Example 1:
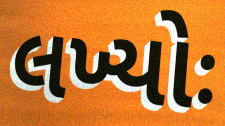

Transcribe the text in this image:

લખ્યોઃ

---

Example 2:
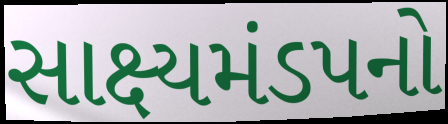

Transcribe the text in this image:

સાક્ષ્યમંડપનો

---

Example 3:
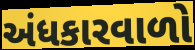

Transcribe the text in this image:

અંધકારવાળો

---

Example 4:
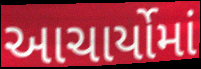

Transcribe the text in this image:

આચાર્યોમાં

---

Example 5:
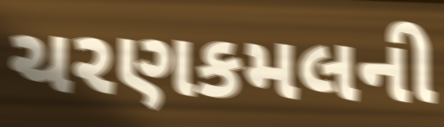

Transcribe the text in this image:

ચરણકમલની